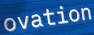
ovation